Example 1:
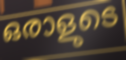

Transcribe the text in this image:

ഒരാളുടെ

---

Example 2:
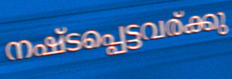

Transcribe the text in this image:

നഷ്ടപ്പെട്ടവര്ക്കു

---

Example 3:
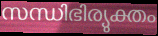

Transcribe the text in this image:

സന്ധിഭിര്യുക്തം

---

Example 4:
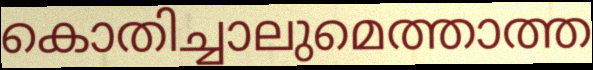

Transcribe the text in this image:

കൊതിച്ചാലുമെത്താത്ത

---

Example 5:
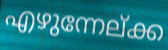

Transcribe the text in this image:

എഴുന്നേല്ക്ക